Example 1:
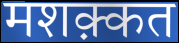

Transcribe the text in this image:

मशक़्कत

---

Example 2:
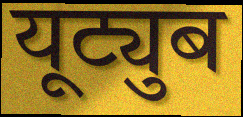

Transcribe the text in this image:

यूट्युब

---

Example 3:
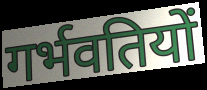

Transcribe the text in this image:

गर्भवतियों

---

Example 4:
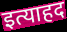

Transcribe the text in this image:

इत्याहद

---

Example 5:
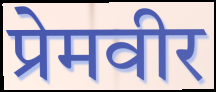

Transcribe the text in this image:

प्रेमवीर